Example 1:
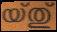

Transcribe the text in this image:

യ്തു്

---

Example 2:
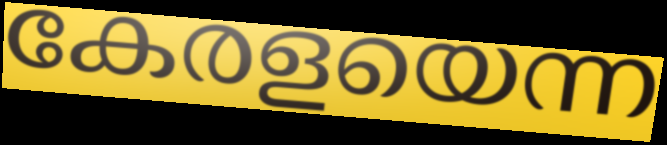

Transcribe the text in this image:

കേരളയെന്ന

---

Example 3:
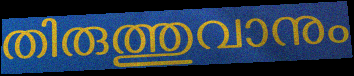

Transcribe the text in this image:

തിരുത്തുവാനും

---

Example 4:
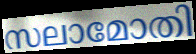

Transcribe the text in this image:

സലാമോതി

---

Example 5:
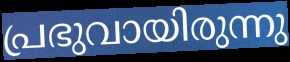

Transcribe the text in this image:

പ്രഭുവായിരുന്നു